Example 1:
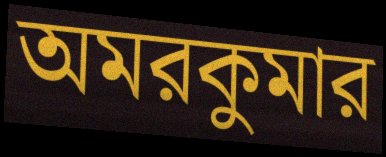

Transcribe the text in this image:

অমরকুমার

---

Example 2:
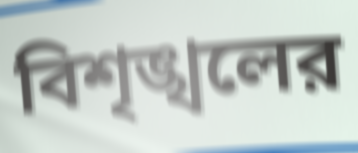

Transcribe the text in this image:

বিশৃঙ্খলের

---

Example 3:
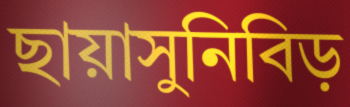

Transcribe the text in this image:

ছায়াসুনিবিড়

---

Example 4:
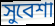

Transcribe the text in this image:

সুবেশা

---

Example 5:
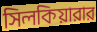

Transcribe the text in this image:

সিলকিয়ারার